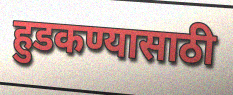
हुडकण्यासाठी